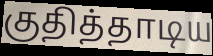
குதித்தாடிய